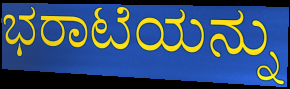
ಭರಾಟೆಯನ್ನು